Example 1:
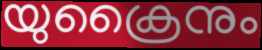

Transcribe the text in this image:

യുക്രൈനും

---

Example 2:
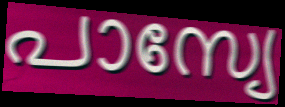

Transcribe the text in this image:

പാസ്യേ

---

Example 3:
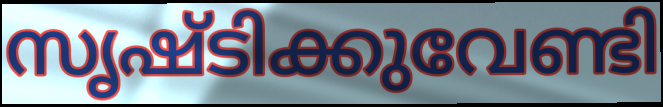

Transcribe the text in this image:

സൃഷ്ടിക്കുവേണ്ടി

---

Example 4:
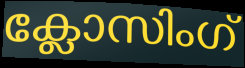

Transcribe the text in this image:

ക്ലോസിംഗ്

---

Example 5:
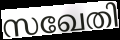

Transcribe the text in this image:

സഖേതി